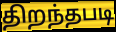
திறந்தபடி